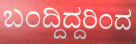
ಬಂದ್ದಿದ್ದರಿಂದ